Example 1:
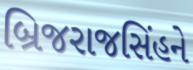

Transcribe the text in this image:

બ્રિજરાજસિંહને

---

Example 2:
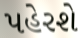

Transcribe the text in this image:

પહેરશે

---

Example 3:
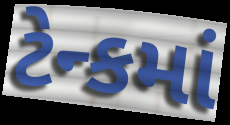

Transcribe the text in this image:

ટેન્કમાં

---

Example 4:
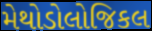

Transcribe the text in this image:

મેથોડોલોજિકલ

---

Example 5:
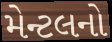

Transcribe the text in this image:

મેન્ટલનો